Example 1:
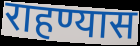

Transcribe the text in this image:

राहण्यास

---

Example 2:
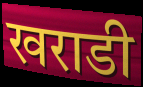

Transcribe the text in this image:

खराडी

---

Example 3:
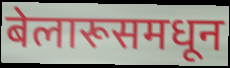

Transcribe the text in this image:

बेलारूसमधून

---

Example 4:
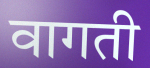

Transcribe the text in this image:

वागती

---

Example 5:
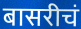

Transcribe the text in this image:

बासरीचं